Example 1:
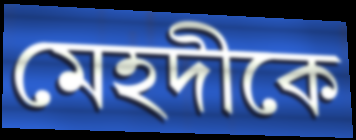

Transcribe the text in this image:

মেহদীকে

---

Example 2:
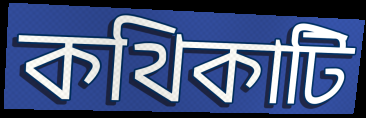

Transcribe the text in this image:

কথিকাটি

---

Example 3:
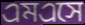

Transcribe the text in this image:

এমএসে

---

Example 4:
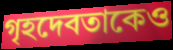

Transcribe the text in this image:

গৃহদেবতাকেও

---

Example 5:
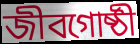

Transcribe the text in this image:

জীবগোষ্ঠী